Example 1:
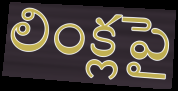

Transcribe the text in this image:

లింక్లపై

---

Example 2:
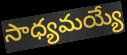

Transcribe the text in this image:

సాధ్యమయ్యే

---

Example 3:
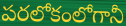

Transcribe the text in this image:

పరలోకంలోగానీ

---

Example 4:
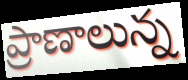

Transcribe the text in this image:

ప్రాణాలున్న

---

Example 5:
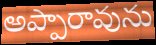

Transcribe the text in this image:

అప్పారావును